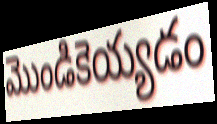
మొండికెయ్యడం